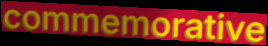
commemorative